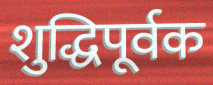
शुद्धिपूर्वक